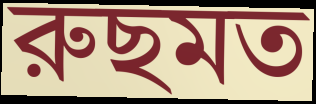
রুছমত